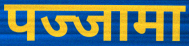
पज्जामा